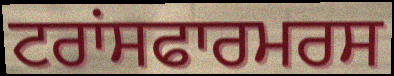
ਟਰਾਂਸਫਾਰਮਰਸ